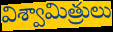
విశ్వామిత్రులు